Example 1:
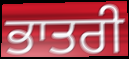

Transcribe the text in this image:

ਭਾਤਰੀ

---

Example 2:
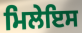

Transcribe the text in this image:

ਮਿਲੇਇਸ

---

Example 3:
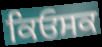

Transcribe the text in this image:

ਕਿਓਸਕ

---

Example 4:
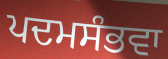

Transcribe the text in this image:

ਪਦਮਸੰਭਵਾ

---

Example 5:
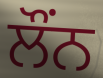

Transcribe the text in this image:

ਲੌਂਨ